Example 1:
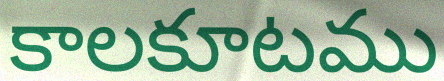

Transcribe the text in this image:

కాలకూటము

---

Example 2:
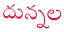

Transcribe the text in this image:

దున్నల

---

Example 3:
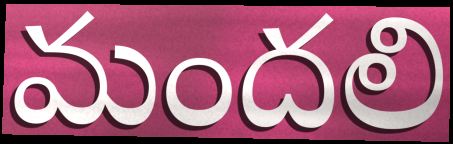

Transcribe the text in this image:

మందలి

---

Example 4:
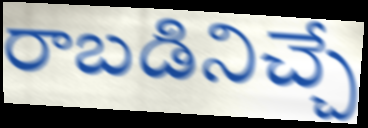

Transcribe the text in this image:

రాబడినిచ్చే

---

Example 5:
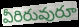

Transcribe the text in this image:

వీరిరువురూ